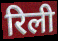
रिली